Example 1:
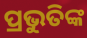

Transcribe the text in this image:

ପ୍ରଭୁତିଙ୍କ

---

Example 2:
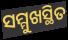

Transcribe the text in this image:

ସମ୍ମୁଖସ୍ଥିତ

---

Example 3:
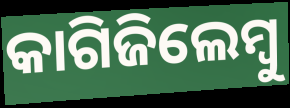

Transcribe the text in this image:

କାଗିଜିଲେମ୍ବୁ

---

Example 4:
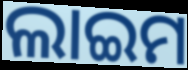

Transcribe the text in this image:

ଲାଇମ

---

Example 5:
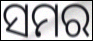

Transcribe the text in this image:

ସମର